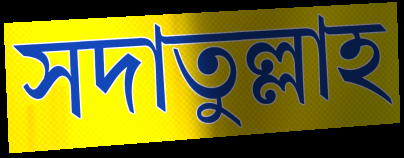
সদাতুল্লাহ